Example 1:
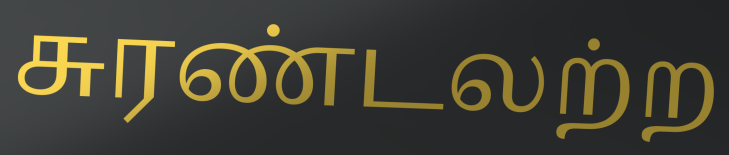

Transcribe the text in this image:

சுரண்டலற்ற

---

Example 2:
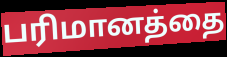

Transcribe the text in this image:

பரிமானத்தை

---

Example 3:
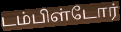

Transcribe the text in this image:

டம்பிள்டோர்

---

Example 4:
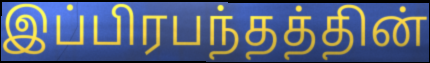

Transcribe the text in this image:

இப்பிரபந்தத்தின்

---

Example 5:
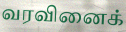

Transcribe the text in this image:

வரவினைக்